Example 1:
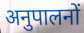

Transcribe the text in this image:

अनुपालनों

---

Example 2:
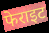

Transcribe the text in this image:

फेराइट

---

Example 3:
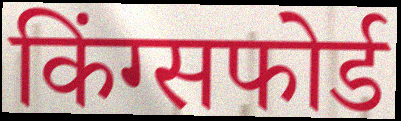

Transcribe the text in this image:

किंग्सफोर्ड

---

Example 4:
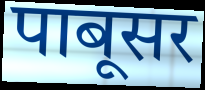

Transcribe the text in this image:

पाबूसर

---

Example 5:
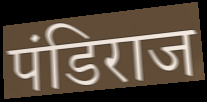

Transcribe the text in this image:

पंडिराज